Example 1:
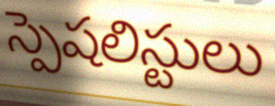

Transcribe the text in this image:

స్పెషలిస్టులు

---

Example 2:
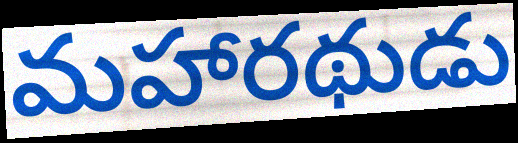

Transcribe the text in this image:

మహారథుడు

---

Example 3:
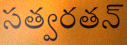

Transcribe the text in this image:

సత్వరతన్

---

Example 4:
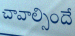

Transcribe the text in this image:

చావాల్సిందే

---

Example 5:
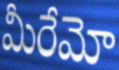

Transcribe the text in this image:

మీరేమో